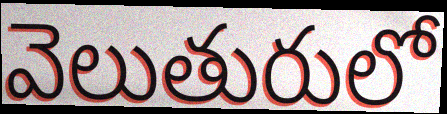
వెలుతురులో